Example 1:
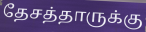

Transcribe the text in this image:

தேசத்தாருக்கு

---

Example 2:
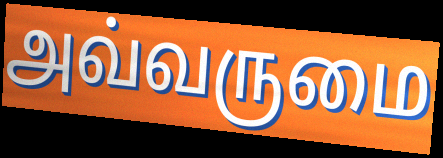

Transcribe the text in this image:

அவ்வருமை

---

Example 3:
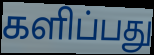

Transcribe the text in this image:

களிப்பது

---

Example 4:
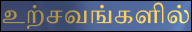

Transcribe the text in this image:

உற்சவங்களில்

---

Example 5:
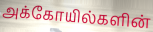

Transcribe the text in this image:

அக்கோயில்களின்